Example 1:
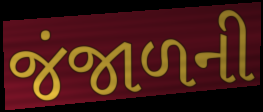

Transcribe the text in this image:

જંજાળની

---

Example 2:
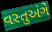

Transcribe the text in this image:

વસ્તુઅંગે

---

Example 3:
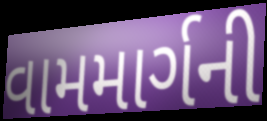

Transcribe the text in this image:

વામમાર્ગની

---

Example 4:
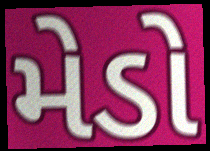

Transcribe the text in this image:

મેડો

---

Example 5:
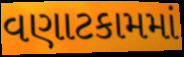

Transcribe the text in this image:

વણાટકામમાં